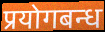
प्रयोगबन्ध